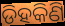
ଡିହକିଣି